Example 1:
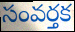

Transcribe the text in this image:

సంవర్తక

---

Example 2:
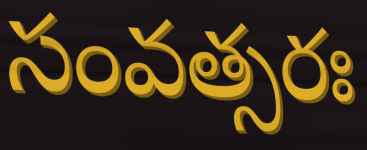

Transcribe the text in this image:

సంవత్సరః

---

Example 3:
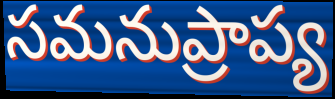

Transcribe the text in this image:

సమనుప్రాప్య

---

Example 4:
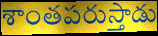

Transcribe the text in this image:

శాంతపరుస్తాడు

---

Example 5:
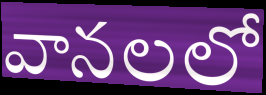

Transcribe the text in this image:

వానలలో